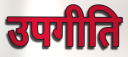
उपगीति